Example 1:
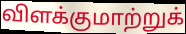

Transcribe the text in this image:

விளக்குமாற்றுக்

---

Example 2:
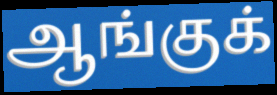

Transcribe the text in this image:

ஆங்குக்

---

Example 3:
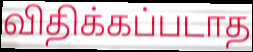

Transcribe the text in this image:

விதிக்கப்படாத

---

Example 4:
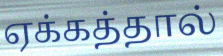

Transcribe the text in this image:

ஏக்கத்தால்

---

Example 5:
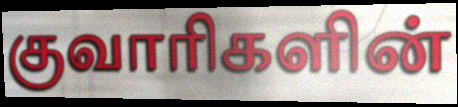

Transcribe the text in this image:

குவாரிகளின்